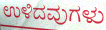
ಉಳಿದವುಗಳು